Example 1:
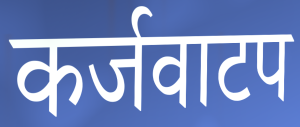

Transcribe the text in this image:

कर्जवाटप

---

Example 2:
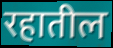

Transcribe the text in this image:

रहातील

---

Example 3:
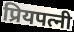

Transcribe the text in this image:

प्रियपत्नी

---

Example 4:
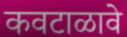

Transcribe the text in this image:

कवटाळावे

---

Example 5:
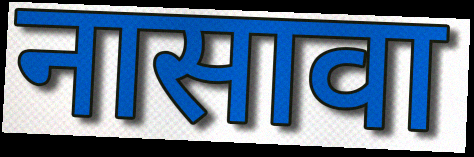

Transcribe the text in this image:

नासावा